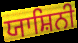
ਯਾਸ਼ਿਨੀ